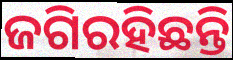
ଜଗିରହିଛନ୍ତି